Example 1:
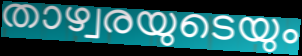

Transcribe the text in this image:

താഴ്വരയുടെയും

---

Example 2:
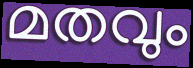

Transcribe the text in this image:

മതവും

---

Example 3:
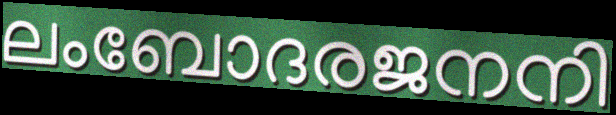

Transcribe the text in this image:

ലംബോദരജനനി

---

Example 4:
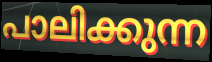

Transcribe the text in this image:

പാലിക്കുന്ന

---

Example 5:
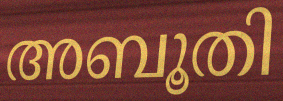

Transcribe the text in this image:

അബൂതി